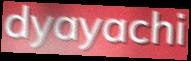
dyayachi